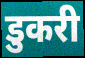
डुकरी